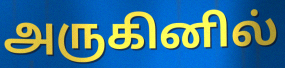
அருகினில்